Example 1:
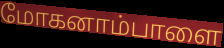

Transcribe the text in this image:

மோகனாம்பாளை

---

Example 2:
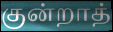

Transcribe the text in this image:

குன்றாத்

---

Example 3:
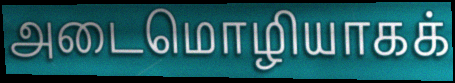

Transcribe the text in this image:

அடைமொழியாகக்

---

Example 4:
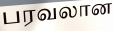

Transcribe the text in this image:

பரவலான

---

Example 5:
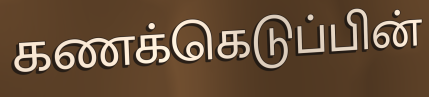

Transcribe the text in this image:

கணக்கெடுப்பின்